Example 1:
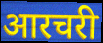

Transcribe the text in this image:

आरचरी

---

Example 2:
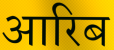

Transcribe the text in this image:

आरिब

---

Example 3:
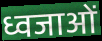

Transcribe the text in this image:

ध्वजाओं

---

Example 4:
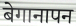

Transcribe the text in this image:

बेगानापन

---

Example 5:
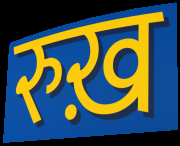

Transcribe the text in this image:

रुख़